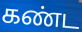
கண்ட